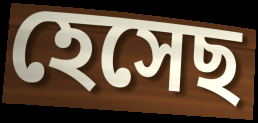
হেসেছ